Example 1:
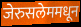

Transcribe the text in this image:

जेरुसलेममधून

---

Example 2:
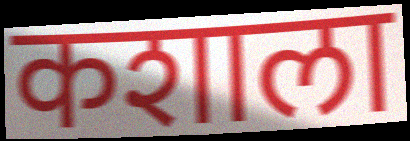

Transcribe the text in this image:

कशाला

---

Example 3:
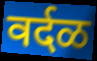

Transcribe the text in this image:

वर्दळ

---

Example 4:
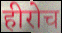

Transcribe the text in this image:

हीरोच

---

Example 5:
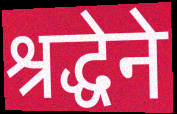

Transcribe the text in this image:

श्रद्धेने